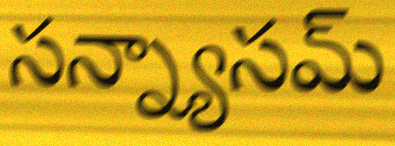
సన్న్యాసమ్